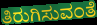
ತಿರುಗಿಸುವಂತೆ